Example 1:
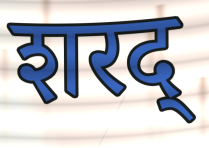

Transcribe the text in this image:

शरद्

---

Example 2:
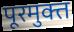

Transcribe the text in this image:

पूरमुक्त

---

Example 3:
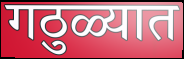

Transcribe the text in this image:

गठुळ्यात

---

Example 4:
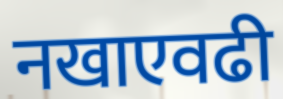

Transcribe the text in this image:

नखाएवढी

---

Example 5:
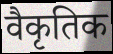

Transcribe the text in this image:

वैकृतिक